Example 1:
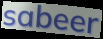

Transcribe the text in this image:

sabeer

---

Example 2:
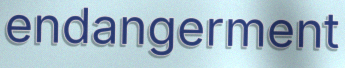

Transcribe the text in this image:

endangerment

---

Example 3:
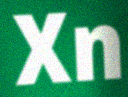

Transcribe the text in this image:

Xn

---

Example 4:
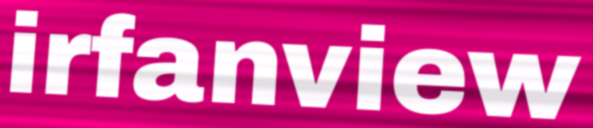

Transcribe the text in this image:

irfanview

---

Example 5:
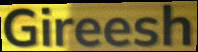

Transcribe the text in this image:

Gireesh